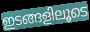
ഇടങ്ങളിലൂടെ